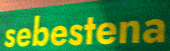
sebestena